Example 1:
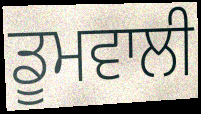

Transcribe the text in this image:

ਡੂਮਵਾਲੀ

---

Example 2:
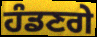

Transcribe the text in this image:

ਹੰਡਣਗੇ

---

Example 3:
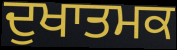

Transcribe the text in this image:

ਦੁਖਾਤਮਕ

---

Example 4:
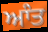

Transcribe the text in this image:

ਆੰਤ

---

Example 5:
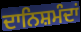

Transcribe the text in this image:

ਦਾਨਿਸ਼ਮੰਦਾਂ